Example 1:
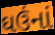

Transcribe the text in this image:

ઘઉંનાં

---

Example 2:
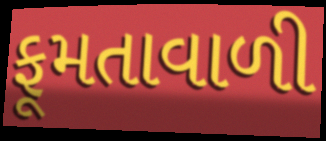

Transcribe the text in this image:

ફૂમતાવાળી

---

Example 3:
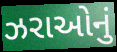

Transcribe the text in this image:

ઝરાઓનું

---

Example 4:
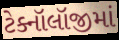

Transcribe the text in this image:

ટેક્નૉલૉજીમાં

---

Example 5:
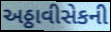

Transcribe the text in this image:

અઠ્ઠાવીસેકની